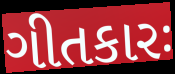
ગીતકારઃ